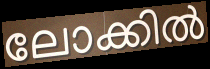
ലോക്കിൽ